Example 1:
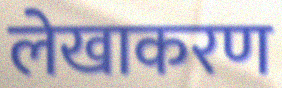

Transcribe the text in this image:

लेखाकरण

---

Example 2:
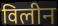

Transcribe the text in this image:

विलीन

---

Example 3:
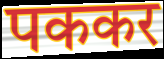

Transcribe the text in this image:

पककर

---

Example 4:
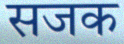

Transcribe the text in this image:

सजक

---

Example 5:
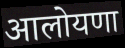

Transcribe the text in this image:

आलोयणा